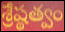
శ్రేష్ఠత్వం